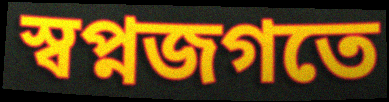
স্বপ্নজগতে